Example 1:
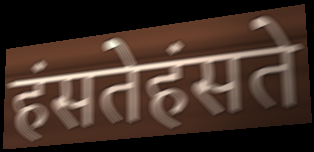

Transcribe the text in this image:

हंसतेहंसते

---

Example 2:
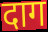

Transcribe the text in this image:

दाग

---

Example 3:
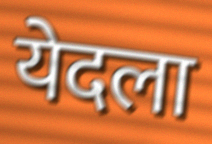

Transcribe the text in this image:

येदला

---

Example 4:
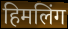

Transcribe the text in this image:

हिमलिंग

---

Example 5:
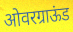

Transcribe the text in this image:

ओवरग्राऊंड